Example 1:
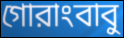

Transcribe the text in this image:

গোরাংবাবু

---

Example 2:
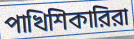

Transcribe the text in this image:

পাখিশিকারিরা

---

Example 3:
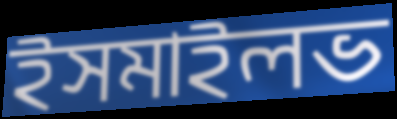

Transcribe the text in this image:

ইসমাইলভ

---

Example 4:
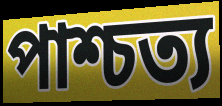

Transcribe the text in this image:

পাশ্চত্য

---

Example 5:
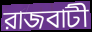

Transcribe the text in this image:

রাজবাটী